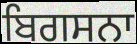
ਬਿਗਸਨਾ